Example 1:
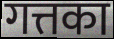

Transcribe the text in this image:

गत्तका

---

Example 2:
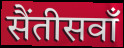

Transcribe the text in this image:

सैंतीसवाँ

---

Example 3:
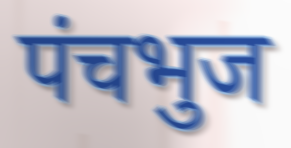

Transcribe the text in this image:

पंचभुज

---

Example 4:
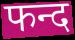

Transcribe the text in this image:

फन्द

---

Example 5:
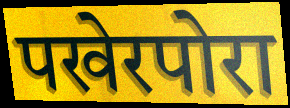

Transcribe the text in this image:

पखेरपोरा